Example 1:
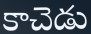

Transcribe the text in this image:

కాచెడు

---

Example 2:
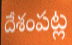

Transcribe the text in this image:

దేశంపట్ల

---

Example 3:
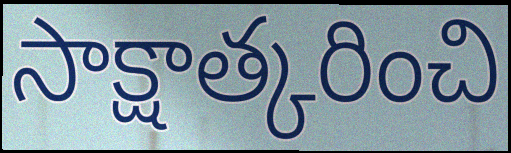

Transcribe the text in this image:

సాక్షాత్కరించి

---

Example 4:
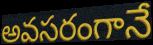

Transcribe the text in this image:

అవసరంగానే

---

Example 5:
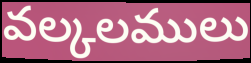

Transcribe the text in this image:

వల్కలములు